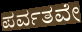
ಪರ್ವತವೇ